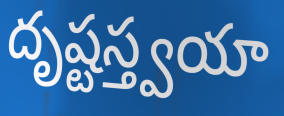
దృష్టస్త్వయా